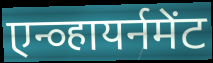
एन्व्हायर्नमेंट